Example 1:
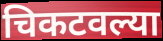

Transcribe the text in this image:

चिकटवल्या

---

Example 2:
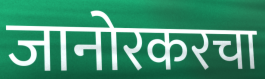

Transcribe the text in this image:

जानोरकरचा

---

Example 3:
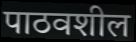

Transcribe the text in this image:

पाठवशील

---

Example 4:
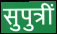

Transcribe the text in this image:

सुपुत्रीं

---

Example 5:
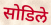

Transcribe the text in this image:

सोडिले